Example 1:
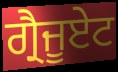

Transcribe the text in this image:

ਗ੍ਰੈਜੂਏਟ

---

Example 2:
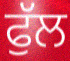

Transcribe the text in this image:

ਫੁੱਲ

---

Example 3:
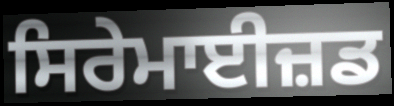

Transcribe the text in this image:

ਸਿਰੇਮਾਈਜ਼ਡ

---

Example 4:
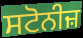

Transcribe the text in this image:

ਸਟੋਨੀਜ਼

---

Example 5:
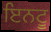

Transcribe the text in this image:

ਇਨਟੂ